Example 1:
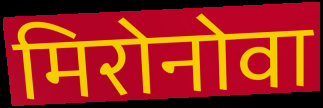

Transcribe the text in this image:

मिरोनोवा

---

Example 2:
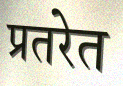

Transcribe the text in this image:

प्रतरेत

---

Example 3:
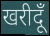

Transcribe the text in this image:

खरीदूँ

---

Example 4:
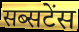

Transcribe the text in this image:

सब्सटेंस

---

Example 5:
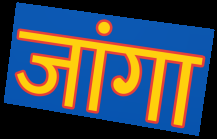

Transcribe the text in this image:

जांगा